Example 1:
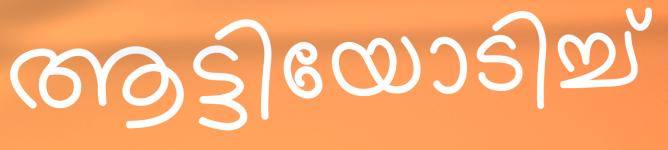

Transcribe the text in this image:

ആട്ടിയോടിച്ച്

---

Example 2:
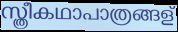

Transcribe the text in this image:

സ്ത്രീകഥാപാത്രങ്ങള്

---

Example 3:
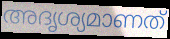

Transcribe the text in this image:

അദൃശ്യമാണത്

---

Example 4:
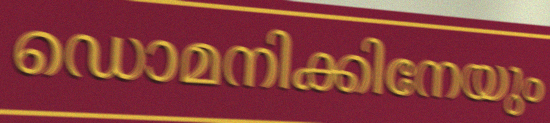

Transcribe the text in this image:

ഡൊമനിക്കിനേയും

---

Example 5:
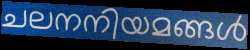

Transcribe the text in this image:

ചലനനിയമങ്ങൾ